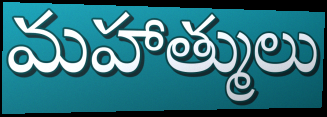
మహాత్ములు